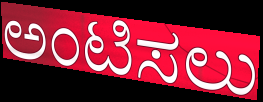
ಅಂಟಿಸಲು